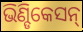
ଭିଣ୍ଡିକେସନ୍